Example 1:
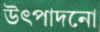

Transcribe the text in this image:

উৎপাদনো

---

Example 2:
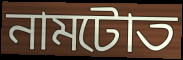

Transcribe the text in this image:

নামটোত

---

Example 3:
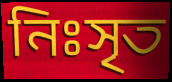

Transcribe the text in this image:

নিঃসৃত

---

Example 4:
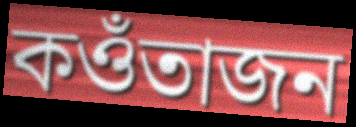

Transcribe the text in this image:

কওঁতাজন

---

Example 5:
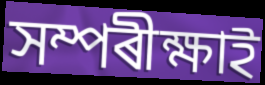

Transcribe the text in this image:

সম্পৰীক্ষাই